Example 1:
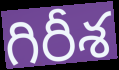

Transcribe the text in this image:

గిరీశ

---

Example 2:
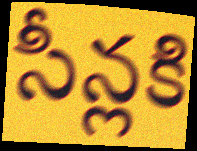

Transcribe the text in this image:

సీన్లకి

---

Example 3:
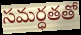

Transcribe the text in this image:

సమర్ధతతో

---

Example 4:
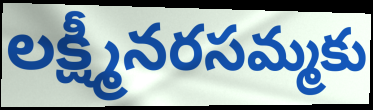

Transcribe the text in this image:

లక్ష్మీనరసమ్మకు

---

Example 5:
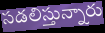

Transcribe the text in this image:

సడలిస్తున్నారు